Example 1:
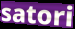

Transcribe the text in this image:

satori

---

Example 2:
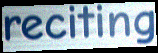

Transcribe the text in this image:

reciting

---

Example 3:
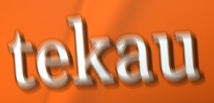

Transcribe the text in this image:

tekau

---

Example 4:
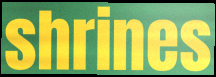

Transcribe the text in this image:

shrines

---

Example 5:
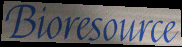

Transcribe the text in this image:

Bioresource